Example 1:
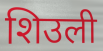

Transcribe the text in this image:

शिउली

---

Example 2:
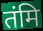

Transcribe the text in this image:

तंमि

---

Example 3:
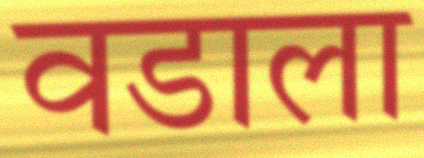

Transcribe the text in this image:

वडाला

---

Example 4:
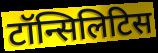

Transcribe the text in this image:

टॉन्सिलिटिस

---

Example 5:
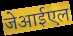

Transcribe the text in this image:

जेआईएल